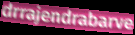
drrajendrabarve